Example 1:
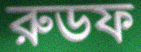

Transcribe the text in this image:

রুডফ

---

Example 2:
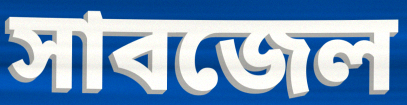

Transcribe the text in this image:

সাবজেল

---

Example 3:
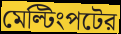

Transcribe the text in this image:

মেল্টিংপটের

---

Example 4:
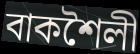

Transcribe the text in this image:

বাকশৈলী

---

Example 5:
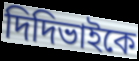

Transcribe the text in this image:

দিদিভাইকে